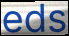
eds